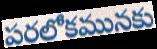
పరలోకమునకు